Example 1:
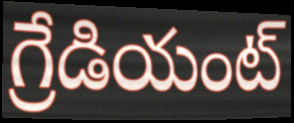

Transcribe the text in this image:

గ్రేడియంట్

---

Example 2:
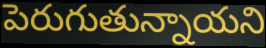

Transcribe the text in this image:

పెరుగుతున్నాయని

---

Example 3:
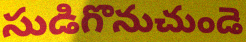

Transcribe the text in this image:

సుడిగొనుచుండె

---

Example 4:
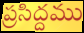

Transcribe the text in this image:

ప్రసిద్దము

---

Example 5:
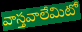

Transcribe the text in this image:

వాస్తవాలేమిటో